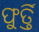
ଫୁର୍ତ୍ତି